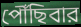
পৌঁছিবার